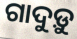
ଗାଦୁଡ଼ୁ